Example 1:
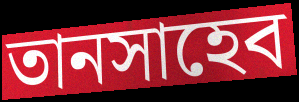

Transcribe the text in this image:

তানসাহেব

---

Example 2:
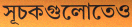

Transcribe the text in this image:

সূচকগুলোতেও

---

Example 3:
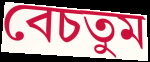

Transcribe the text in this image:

বেচতুম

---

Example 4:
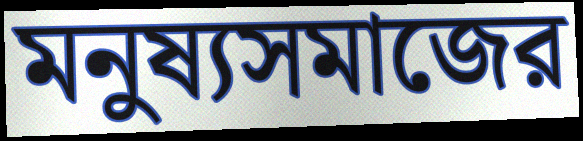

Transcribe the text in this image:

মনুষ্যসমাজের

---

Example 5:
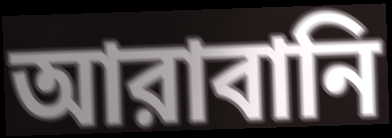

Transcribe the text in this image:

আরাবানি